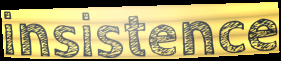
insistence